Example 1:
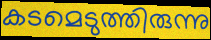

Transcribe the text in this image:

കടമെടുത്തിരുന്നു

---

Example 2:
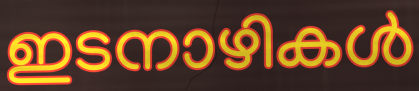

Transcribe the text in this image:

ഇടനാഴികൾ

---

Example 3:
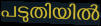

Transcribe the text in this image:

പടുതിയിൽ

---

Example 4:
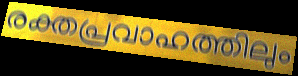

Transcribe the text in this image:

രക്തപ്രവാഹത്തിലും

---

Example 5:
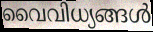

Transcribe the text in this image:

വൈവിധ്യങ്ങൾ